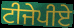
ਟੀਜੇਪੀਏ